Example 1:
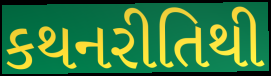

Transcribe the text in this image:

કથનરીતિથી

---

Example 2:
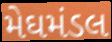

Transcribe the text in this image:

મેઘમંડલ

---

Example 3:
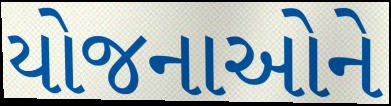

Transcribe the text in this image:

યોજનાઓને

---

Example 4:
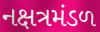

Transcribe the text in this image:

નક્ષત્રમંડળ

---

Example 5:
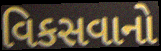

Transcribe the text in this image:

વિકસવાનો